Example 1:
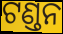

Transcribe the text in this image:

ଟଣ୍ଡନ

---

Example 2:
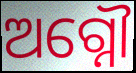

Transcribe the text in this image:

ଅଗ୍ନୌ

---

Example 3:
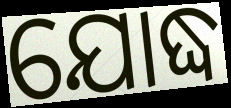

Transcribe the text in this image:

ଯୋଦ୍ଧ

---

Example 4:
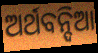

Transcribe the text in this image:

ଅର୍ଥବନ୍ଦିଆ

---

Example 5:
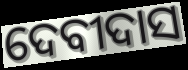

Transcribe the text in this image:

ଦେବୀଦାସ